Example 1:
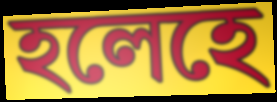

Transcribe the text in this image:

হলেহে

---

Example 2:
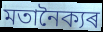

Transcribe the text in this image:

মতানৈক্যৰ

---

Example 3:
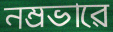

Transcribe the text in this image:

নম্ৰভাৱে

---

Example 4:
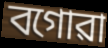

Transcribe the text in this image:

বগোৱা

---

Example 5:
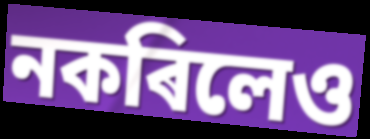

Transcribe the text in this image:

নকৰিলেও